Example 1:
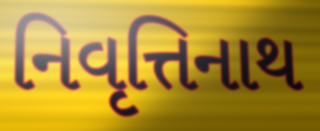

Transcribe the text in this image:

નિવૃત્તિનાથ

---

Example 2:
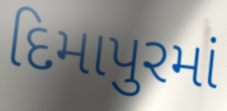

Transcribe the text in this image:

દિમાપુરમાં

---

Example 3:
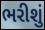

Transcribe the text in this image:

ભરીશું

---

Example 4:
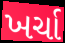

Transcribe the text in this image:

ખર્ચા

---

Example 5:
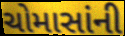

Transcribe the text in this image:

ચોમાસાંની